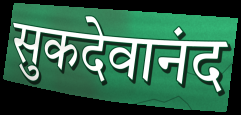
सुकदेवानंद